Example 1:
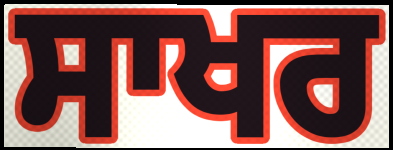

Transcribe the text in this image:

ਸਾਖਰ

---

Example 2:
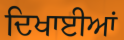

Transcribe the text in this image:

ਦਿਖਾਈਆਂ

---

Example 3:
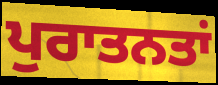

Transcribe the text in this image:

ਪੁਰਾਤਨਤਾਂ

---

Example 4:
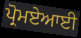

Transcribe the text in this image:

ਪ੍ਰੋਮਏਆਈ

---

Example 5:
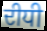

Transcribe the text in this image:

ਦੀਧੀ